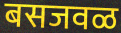
बसजवळ